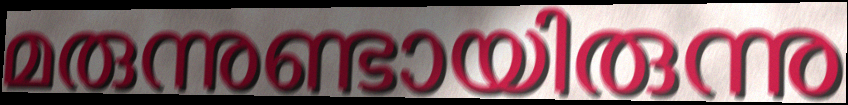
മരുന്നുണ്ടായിരുന്നു